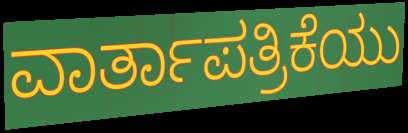
ವಾರ್ತಾಪತ್ರಿಕೆಯು